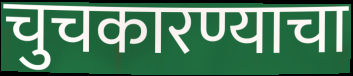
चुचकारण्याचा